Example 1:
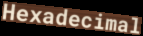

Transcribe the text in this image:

Hexadecimal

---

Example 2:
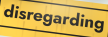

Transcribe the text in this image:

disregarding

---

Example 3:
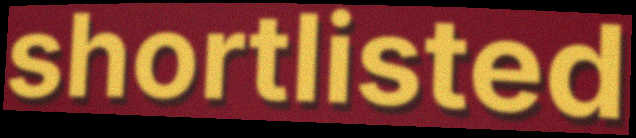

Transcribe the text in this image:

shortlisted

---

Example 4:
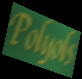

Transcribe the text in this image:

Polyols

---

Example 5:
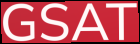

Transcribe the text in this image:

GSAT